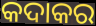
କଦାକର